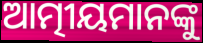
ଆତ୍ମୀୟମାନଙ୍କୁ